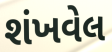
શંખવેલ